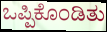
ಒಪ್ಪಿಕೊಂಡಿತು